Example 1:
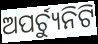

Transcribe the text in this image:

ଅପର୍ଚ୍ୟୁନିଟି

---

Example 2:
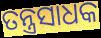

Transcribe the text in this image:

ତନ୍ତ୍ରସାଧକ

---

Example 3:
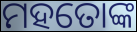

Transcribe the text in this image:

ମହତୋଙ୍କ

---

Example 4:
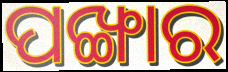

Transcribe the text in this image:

ପଙ୍ଖାର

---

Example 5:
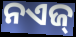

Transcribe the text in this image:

ନଏଜ୍